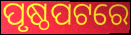
ପୃଷ୍ଠପଟରେ